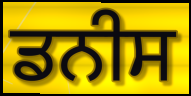
ਡਨੀਸ